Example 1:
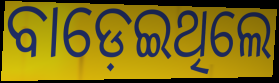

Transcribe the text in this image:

ବାଡ଼େଇଥିଲେ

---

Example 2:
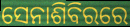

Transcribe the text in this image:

ସେନାଶିବିରରେ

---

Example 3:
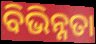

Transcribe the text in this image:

ବିଭିନ୍ନତା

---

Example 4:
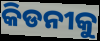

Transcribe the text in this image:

କିଡନୀକୁ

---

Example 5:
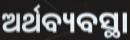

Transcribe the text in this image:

ଅର୍ଥବ୍ୟବସ୍ଥା